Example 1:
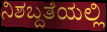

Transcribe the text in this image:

ನಿಶಬ್ದತೆಯಲ್ಲಿ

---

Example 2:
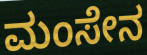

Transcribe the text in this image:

ಮಂಸೇನ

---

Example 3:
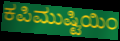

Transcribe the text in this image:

ಕಪಿಮುಷ್ಟಿಯಿಂ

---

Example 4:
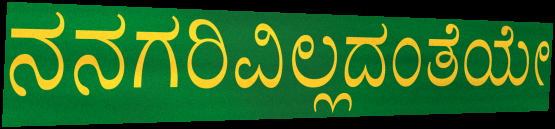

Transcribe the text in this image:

ನನಗರಿವಿಲ್ಲದಂತೆಯೇ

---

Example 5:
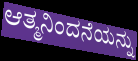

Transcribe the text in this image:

ಆತ್ಮನಿಂದನೆಯನ್ನು